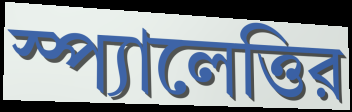
স্প্যালেত্তির